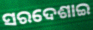
ସରଦେଶାଇ